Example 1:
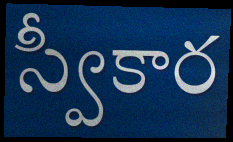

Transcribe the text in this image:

స్వీకార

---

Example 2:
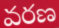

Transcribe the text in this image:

వరణ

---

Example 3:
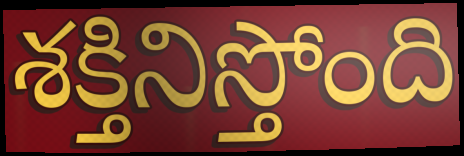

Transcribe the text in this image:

శక్తినిస్తోంది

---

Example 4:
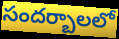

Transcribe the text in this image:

సందర్బాలలో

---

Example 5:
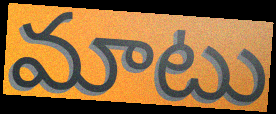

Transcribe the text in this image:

మాటు